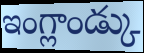
ఇంగ్లాండ్కు